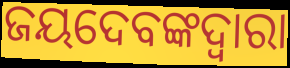
ଜୟଦେବଙ୍କଦ୍ୱାରା